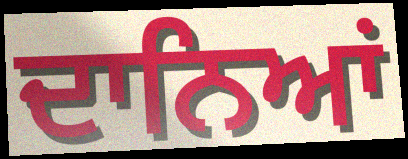
ਦਾਨਿਆਂ